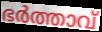
ഭർത്താവ്